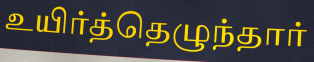
உயிர்த்தெழுந்தார்